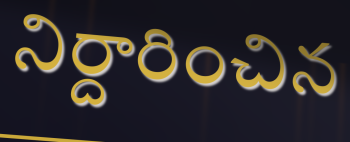
నిర్దారించిన